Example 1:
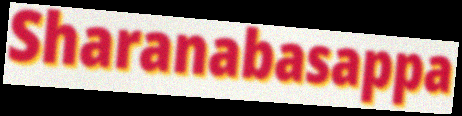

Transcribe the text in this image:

Sharanabasappa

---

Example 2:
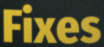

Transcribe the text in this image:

Fixes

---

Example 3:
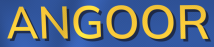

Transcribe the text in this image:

ANGOOR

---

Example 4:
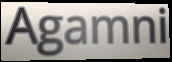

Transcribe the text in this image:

Agamni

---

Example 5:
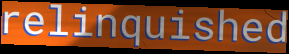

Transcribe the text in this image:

relinquished